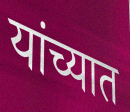
यांच्यात